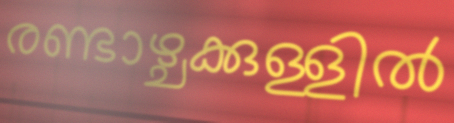
രണ്ടാഴ്ചക്കുള്ളിൽ